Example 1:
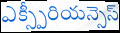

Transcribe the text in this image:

ఎక్స్పీరియన్సెస్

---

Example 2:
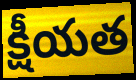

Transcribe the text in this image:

క్షీయత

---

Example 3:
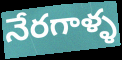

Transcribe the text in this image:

నేరగాళ్ళ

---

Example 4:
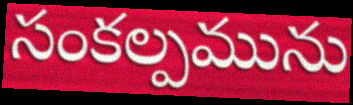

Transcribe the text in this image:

సంకల్పమును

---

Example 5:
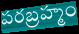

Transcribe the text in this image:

పరబ్రహ్మం